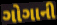
ગોગાની